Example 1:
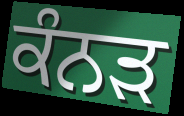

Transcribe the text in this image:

ਕੰਨਡ਼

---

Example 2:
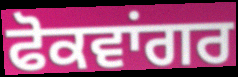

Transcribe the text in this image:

ਫੋਕਵਾਂਗਰ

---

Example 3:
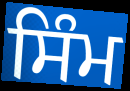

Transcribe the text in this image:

ਸਿੰਮ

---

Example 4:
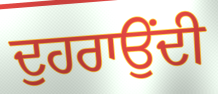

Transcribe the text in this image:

ਦੁਹਰਾਉਂਦੀ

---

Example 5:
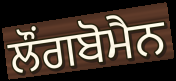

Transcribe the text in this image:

ਲੌਂਗਬੋਮੈਨ